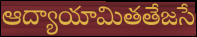
ఆద్యాయామితతేజసే